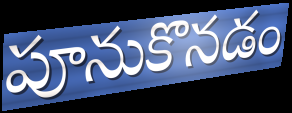
పూనుకొనడం